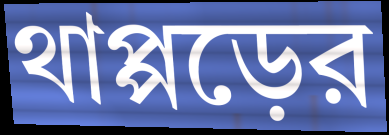
থাপ্পড়ের